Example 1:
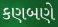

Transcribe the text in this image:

કણબણે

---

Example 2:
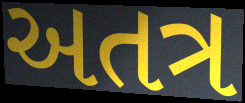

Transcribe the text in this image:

અતત્ર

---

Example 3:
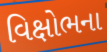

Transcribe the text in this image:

વિક્ષોભના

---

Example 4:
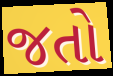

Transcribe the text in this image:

જતો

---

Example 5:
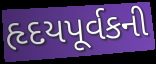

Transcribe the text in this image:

હૃદયપૂર્વકની